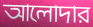
আলোদার